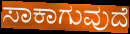
ಸಾಕಾಗುವುದೆ